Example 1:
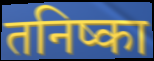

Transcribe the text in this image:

तनिष्का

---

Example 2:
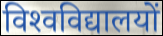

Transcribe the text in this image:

विश्‍वविद्यालयों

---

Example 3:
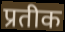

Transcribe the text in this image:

प्रतीक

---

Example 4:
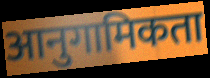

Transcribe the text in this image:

आनुगामिकता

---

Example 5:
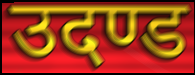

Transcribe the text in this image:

उदण्ड